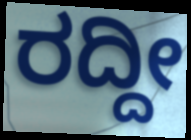
ರದ್ದೀ